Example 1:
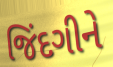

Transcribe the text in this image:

જિંદગીને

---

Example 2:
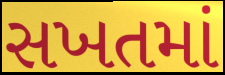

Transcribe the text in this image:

સખતમાં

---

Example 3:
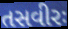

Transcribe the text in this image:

તસવીરઃ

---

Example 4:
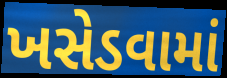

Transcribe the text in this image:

ખસેડવામાં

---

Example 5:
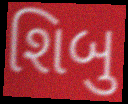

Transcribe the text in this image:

શિબુ